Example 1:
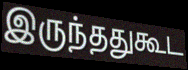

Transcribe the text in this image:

இருந்ததுகூட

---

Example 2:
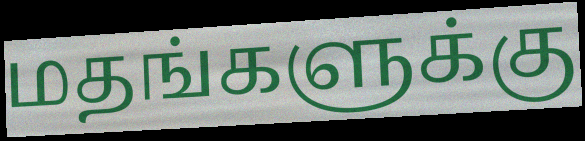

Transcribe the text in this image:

மதங்களுக்கு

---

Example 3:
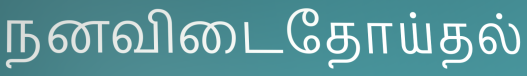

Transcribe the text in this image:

நனவிடைதோய்தல்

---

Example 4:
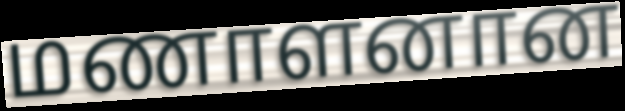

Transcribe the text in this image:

மணாளனான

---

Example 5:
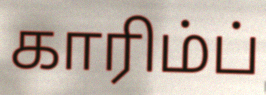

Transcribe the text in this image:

காரிம்ப்